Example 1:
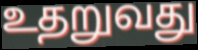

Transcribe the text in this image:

உதறுவது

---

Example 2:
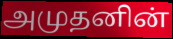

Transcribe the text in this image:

அமுதனின்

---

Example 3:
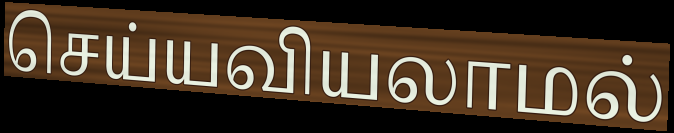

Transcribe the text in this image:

செய்யவியலாமல்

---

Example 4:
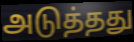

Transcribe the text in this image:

அடுத்தது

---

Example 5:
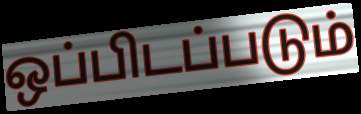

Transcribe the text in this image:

ஒப்பிடப்படும்